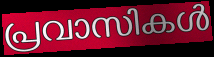
പ്രവാസികൾ